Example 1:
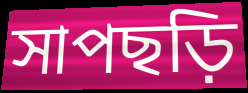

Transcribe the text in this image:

সাপছড়ি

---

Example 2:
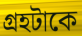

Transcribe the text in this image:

গ্রহটাকে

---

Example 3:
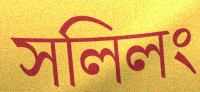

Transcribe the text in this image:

সলিলং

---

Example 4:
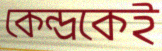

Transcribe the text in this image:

কেন্দ্রকেই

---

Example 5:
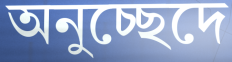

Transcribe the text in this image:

অনুচ্ছেদে